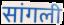
सांगली